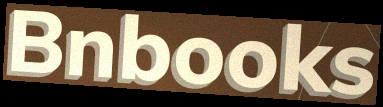
Bnbooks